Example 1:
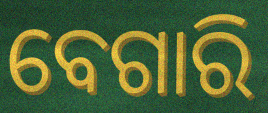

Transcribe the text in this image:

ବେଗାରି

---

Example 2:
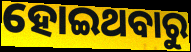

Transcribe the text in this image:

ହୋଇଥବାରୁ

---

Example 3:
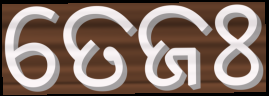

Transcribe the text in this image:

ତେଜଃ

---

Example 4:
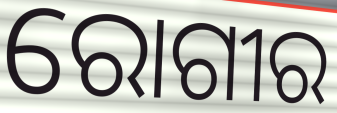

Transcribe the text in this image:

ରୋଗୀର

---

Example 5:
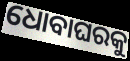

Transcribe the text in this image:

ଧୋବାଘରକୁ